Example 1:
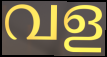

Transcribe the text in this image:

വള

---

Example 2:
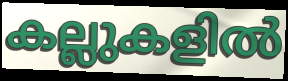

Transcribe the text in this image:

കല്ലുകളിൽ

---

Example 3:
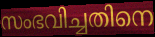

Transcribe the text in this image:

സംഭവിച്ചതിനെ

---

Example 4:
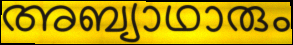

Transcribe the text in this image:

അബ്യാഥാരും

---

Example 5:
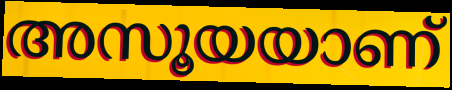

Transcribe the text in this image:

അസൂയയാണ്